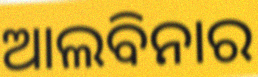
ଆଲବିନାର